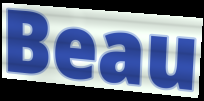
Beau